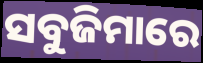
ସବୁଜିମାରେ